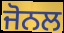
ਜੋਨਲ